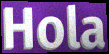
Hola